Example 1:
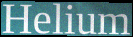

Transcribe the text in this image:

Helium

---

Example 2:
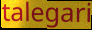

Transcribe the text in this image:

talegari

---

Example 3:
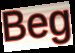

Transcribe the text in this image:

Beg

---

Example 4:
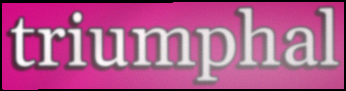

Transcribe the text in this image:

triumphal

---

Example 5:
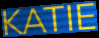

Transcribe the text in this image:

KATIE